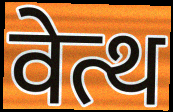
वेत्थ